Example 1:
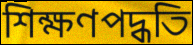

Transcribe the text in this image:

শিক্ষণপদ্ধতি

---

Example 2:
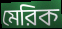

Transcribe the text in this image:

মেরিক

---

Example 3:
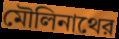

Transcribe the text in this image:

মৌলিনাথের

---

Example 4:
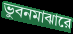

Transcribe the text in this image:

ভুবনমাঝারে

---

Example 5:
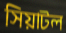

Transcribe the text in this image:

সিয়াটল